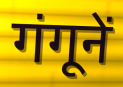
गंगूनें